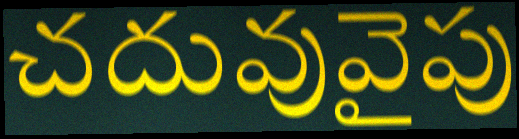
చదువువైపు